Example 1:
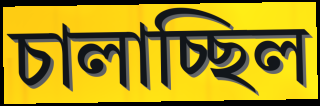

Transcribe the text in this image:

চালাচ্ছিল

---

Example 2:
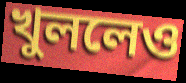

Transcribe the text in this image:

খুললেও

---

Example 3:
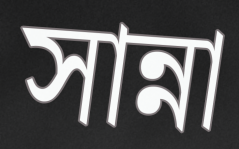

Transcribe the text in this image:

সান্না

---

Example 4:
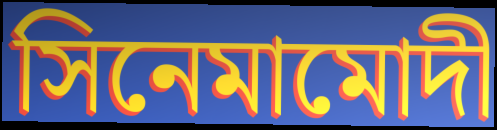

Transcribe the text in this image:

সিনেমামোদী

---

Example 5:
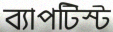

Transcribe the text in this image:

ব্যাপটিস্ট